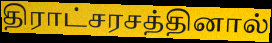
திராட்சரசத்தினால்